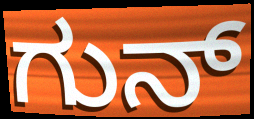
ಗುನ್